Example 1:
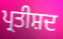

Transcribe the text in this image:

ਪ੍ਰਤੀਸ਼ਦ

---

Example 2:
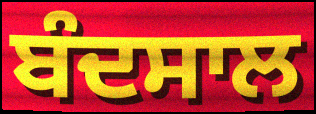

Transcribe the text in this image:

ਬੰਦਸਾਲ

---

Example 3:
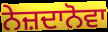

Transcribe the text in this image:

ਨੇਜ਼ਦਾਨੋਵਾ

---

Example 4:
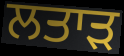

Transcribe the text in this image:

ਲਤਾੜ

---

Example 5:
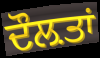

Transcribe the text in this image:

ਦੌਲ਼ਤਾਂ